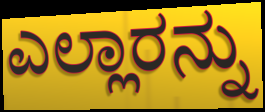
ಎಲ್ಲಾರನ್ನು